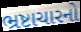
ભ્રષ્ટાચારનો